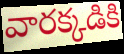
వారక్కడికి